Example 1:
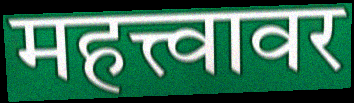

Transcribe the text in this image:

महत्त्वावर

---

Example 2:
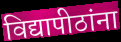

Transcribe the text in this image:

विद्यापीठांना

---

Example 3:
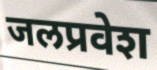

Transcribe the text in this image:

जलप्रवेश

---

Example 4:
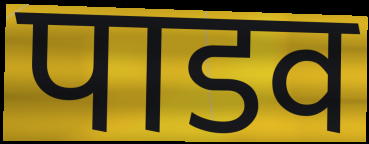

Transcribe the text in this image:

पाडव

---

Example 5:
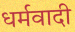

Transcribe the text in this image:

धर्मवादी